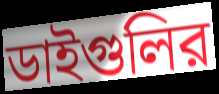
ডাইগুলির